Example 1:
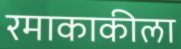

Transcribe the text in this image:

रमाकाकीला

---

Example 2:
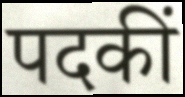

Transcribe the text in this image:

पदकीं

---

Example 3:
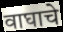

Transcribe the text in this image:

वाघाचे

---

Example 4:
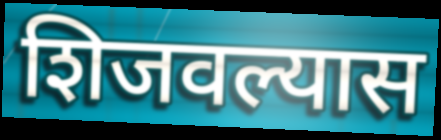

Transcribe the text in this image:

शिजवल्यास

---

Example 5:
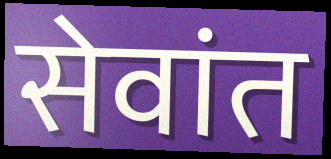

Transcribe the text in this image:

सेवांत